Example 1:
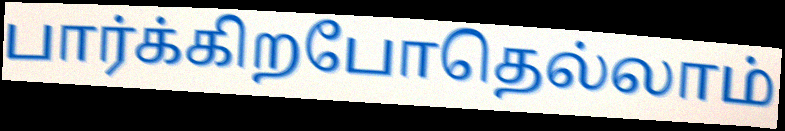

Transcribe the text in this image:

பார்க்கிறபோதெல்லாம்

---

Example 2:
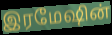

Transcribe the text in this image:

இரமேஷின்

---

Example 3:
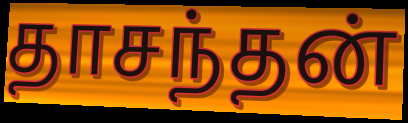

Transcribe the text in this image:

தாசந்தன்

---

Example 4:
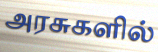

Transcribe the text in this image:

அரசுகளில்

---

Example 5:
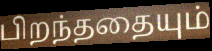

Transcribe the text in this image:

பிறந்ததையும்